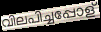
വിലപിച്ചപ്പോള്